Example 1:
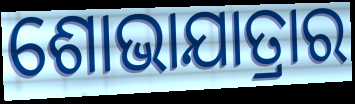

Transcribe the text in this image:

ଶୋଭାଯାତ୍ରାର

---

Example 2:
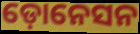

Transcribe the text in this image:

ଡ଼ୋନେସନ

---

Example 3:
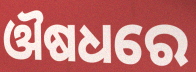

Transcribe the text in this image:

ଔଷଧରେ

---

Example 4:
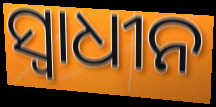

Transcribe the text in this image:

ସ୍ୱାଧୀନ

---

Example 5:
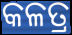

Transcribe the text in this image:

କଳତ୍ର